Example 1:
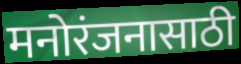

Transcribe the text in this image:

मनोरंजनासाठी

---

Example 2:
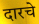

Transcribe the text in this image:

दारचे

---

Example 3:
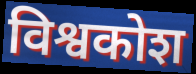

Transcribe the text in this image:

विश्वकोश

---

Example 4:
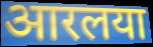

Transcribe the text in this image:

आरलया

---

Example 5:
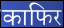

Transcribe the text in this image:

काफिर